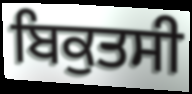
ਬਿਕੁਤਸੀ